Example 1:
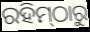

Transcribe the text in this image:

ରହିମ୍‌ଠାରୁ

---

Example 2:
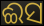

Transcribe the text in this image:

ଈସ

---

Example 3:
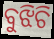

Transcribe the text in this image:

ବୁଝିଚି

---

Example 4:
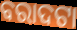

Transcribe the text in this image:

ବରାଦଟା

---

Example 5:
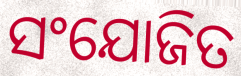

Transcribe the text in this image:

ସଂଯୋଜିତ